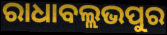
ରାଧାବଲ୍ଲଭପୁର